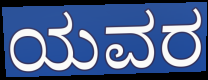
ಯವರ